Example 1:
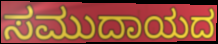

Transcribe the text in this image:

ಸಮುದಾಯದ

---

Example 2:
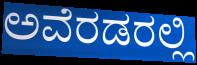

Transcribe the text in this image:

ಅವೆರಡರಲ್ಲಿ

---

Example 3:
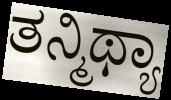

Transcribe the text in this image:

ತನ್ಮಿಥ್ಯಾ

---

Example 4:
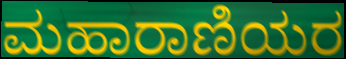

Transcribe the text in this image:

ಮಹಾರಾಣಿಯರ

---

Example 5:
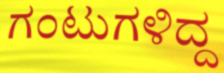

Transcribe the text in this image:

ಗಂಟುಗಳಿದ್ದ